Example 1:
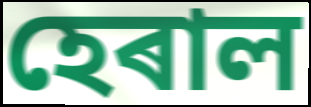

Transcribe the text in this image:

হেৰাল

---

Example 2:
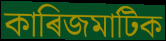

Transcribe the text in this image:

কাৰিজমাটিক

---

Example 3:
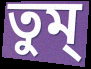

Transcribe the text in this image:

তুম্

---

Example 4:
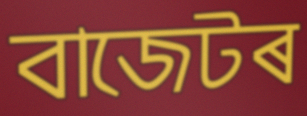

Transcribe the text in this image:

বাজেটৰ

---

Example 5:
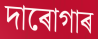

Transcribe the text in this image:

দাৰোগাৰ